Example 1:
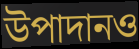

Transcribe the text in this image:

উপাদানও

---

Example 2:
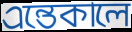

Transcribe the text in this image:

এন্তেকালে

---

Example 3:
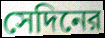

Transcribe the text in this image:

সেদিনের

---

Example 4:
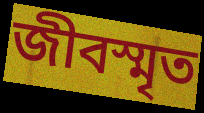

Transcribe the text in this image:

জীবস্মৃত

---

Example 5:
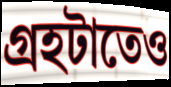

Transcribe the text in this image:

গ্রহটাতেও